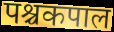
पश्चकपाल